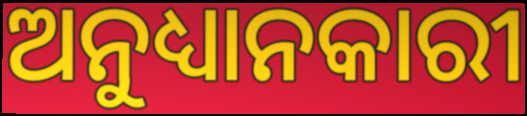
ଅନୁଧ୍ୟାନକାରୀ